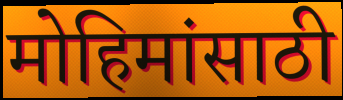
मोहिमांसाठी